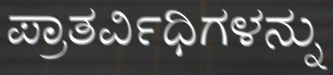
ಪ್ರಾತರ್ವಿಧಿಗಳನ್ನು